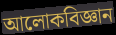
আলোকবিজ্ঞান